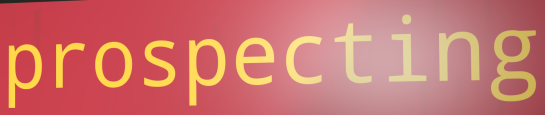
prospecting